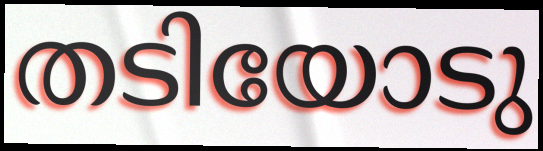
തടിയോടു